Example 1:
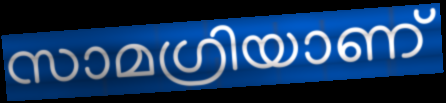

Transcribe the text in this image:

സാമഗ്രിയാണ്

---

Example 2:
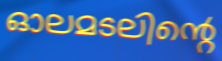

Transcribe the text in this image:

ഓലമടലിന്റെ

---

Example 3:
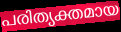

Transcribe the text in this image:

പരിത്യക്തമായ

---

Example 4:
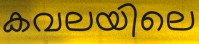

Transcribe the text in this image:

കവലയിലെ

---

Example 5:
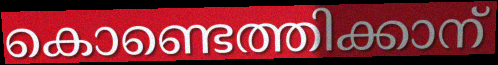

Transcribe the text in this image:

കൊണ്ടെത്തിക്കാന്